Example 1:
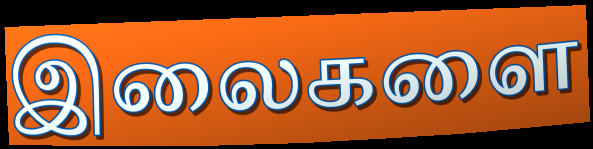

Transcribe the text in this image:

இலைகளை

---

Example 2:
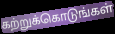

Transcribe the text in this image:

கற்றுக்கொடுங்கள்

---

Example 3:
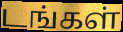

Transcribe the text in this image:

டங்கள்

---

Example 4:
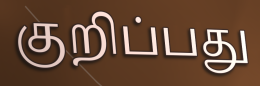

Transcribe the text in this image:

குறிப்பது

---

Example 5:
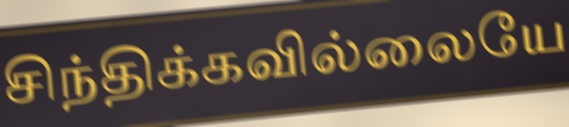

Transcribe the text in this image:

சிந்திக்கவில்லையே